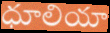
ధూలియా